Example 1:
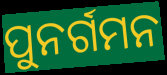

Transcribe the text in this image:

ପୁନର୍ଗମନ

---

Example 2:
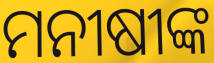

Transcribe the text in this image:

ମନୀଷୀଙ୍କ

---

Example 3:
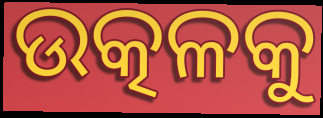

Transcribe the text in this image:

ଉତ୍କଳକୁ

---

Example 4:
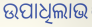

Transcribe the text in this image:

ଉପାଧିଲାଭ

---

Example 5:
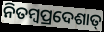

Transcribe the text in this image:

ନିତମ୍ବପ୍ରଦେଶାତ୍